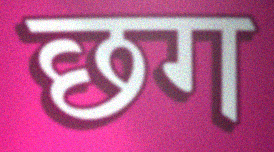
छग